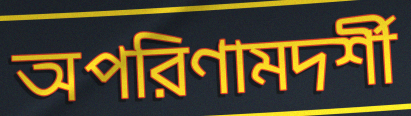
অপরিণামদর্শী